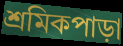
শ্রমিকপাড়া